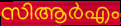
സിആർഎം